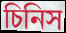
চিনিস